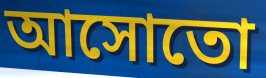
আসোতো